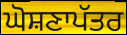
ਘੋਸ਼ਣਾਪੱਤਰ